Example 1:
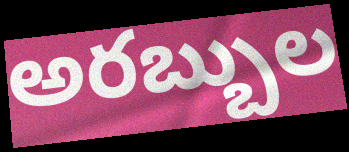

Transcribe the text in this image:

అరబ్బుల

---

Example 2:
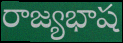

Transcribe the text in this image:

రాజ్యభాష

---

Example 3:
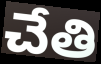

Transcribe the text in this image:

చేతి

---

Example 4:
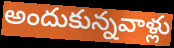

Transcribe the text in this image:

అందుకున్నవాళ్లు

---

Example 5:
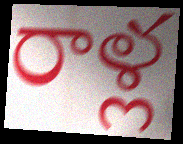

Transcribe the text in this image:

రాళ్ల